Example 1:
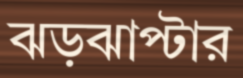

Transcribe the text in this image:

ঝড়ঝাপ্টার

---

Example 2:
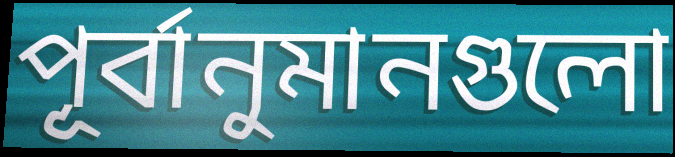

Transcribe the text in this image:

পূর্বানুমানগুলো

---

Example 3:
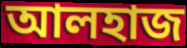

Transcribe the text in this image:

আলহাজ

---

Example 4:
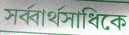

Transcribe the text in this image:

সর্ব্বার্থসাধিকে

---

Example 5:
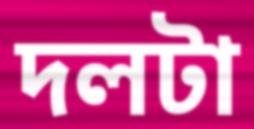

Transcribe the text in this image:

দলটা